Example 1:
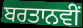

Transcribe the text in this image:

ਬਰਤਾਨਵੀਂ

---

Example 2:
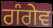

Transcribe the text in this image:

ਗੰਗੇਵ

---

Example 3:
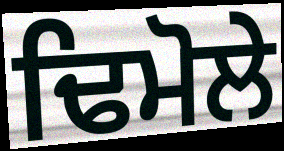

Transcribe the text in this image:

ਢਿਮੋਲੇ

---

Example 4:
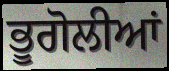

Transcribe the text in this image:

ਭੂਗੋਲੀਆਂ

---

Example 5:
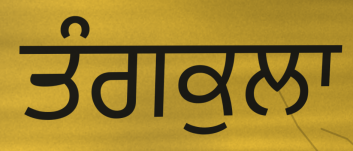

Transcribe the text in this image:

ਤੰਗਕੁਲਾ